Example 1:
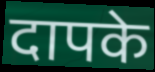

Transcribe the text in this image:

दापके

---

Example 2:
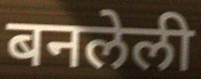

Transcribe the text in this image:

बनलेली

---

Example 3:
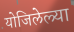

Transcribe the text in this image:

योजिलेल्या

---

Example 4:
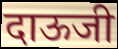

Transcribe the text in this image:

दाऊजी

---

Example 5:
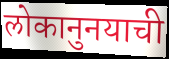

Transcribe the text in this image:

लोकानुनयाची